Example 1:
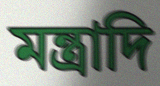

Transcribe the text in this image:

মন্ত্রাদি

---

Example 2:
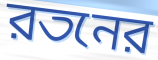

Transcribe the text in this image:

রতনের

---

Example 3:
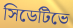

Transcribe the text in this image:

সিডেটিভে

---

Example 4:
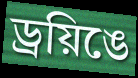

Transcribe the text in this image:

ড্রয়িঙে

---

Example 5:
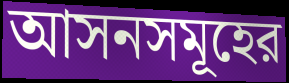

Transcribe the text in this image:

আসনসমূহের